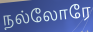
நல்லோரே